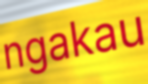
ngakau